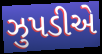
ઝુપડીએ